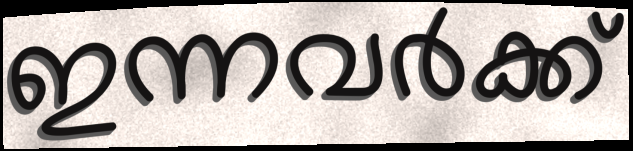
ഇന്നവർക്ക്